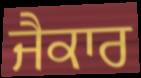
ਜੈਕਾਰ